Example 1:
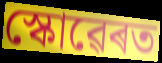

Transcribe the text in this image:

স্কোৱেৰত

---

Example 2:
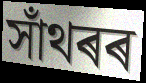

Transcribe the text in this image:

সাঁথৰৰ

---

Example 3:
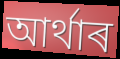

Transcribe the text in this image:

আৰ্থাৰ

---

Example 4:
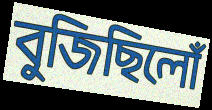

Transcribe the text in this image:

বুজিছিলোঁ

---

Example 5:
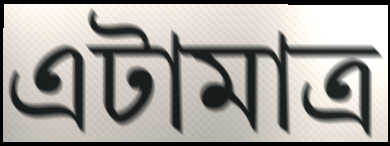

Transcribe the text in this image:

এটামাত্ৰ